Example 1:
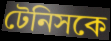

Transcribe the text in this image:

টেনিসকে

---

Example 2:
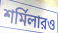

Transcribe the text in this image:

শর্মিলারও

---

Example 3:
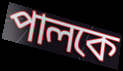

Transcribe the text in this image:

পালকে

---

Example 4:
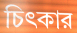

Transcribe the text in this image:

চিৎকার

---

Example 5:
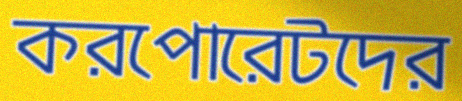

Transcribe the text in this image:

করপোরেটদের